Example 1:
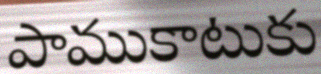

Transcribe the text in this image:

పాముకాటుకు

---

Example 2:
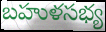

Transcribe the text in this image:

బహుళసభ్య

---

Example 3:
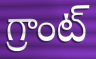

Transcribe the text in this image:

గ్రాంట్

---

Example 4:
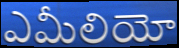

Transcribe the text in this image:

ఎమీలియో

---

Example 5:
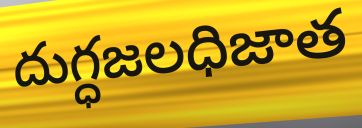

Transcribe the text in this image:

దుగ్ధజలధిజాత